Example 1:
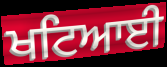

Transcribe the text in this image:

ਖਟਿਆਈ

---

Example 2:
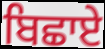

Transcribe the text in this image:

ਬਿਛਾਏ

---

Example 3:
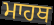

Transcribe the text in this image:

ਮਾਹਥ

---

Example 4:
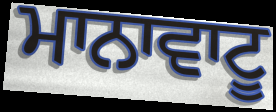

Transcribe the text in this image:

ਮਾਨਾਵਾਟੂ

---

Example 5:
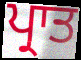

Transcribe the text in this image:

ਪ੍ਰਾਤ